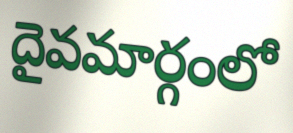
దైవమార్గంలో